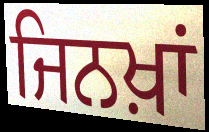
ਜਿਨਖ਼ਾਂ